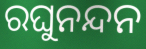
ରଘୁନନ୍ଦନ